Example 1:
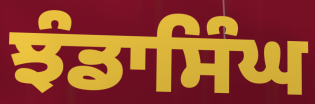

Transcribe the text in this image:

ਝੰਡਾਸਿੰਘ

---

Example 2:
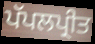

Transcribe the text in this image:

ਪੱਪਲਪ੍ਰੀਤ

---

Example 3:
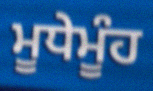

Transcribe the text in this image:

ਮੂਧੇਮੂੰਹ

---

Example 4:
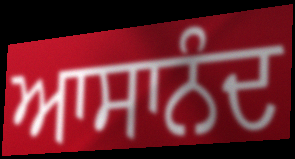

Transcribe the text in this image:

ਆਸਾਨੰਦ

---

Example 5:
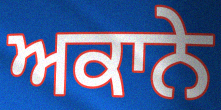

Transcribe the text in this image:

ਅਕਾਨੇ